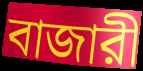
বাজারী